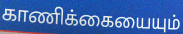
காணிக்கையையும்